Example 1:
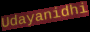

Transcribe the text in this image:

Udayanidhi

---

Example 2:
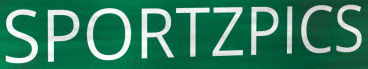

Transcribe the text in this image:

SPORTZPICS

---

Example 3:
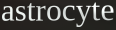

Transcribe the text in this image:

astrocyte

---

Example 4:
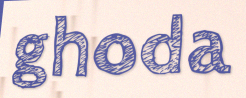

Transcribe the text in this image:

ghoda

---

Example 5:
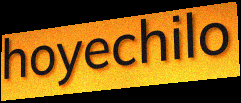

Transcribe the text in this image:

hoyechilo